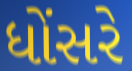
ધોંસરે